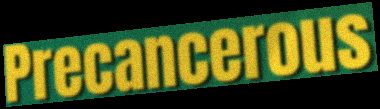
Precancerous